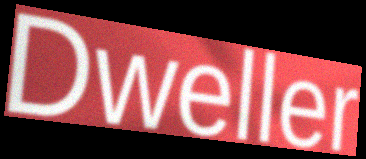
Dweller